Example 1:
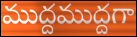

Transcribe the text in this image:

ముద్దముద్దగా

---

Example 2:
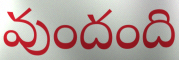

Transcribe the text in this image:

వుందంది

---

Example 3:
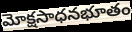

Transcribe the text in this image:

మోక్షసాధనభూతం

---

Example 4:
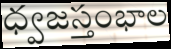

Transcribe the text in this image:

ధ్వజస్తంభాల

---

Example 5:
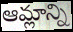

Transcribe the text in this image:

ఆమ్లాన్ని